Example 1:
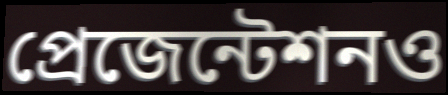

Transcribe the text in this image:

প্রেজেন্টেশনও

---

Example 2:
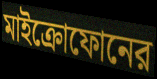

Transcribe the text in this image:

মাইক্রোফোনের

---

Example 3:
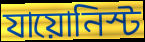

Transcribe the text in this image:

যায়োনিস্ট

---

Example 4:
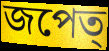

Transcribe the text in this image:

জপেত্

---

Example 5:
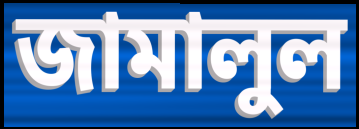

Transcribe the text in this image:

জামালুল